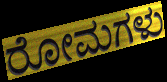
ರೋಮಗಳು